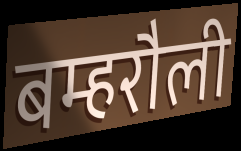
बम्हरौली